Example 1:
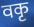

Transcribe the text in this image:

वकृ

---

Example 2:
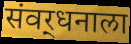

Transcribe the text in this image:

संवर्धनाला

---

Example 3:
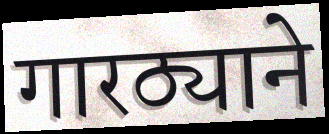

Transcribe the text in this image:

गारठ्याने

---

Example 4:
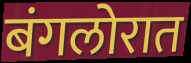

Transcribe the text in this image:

बंगलोरात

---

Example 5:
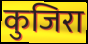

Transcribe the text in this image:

कुजिरा